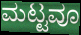
ಮಟ್ಟವೂ